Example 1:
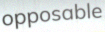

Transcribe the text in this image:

opposable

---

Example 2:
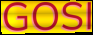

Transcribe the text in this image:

GOSI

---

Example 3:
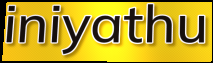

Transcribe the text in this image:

iniyathu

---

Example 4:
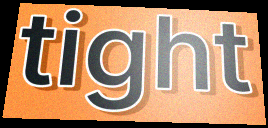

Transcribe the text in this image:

tight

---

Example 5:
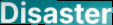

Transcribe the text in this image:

Disaster